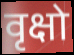
वृक्षो